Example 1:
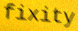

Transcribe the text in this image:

fixity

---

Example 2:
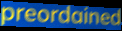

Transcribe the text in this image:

preordained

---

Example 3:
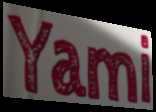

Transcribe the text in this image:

Yami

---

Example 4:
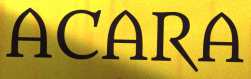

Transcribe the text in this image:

ACARA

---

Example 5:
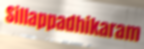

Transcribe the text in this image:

Sillappadhikaram